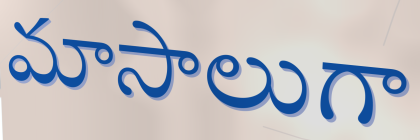
మాసాలుగా